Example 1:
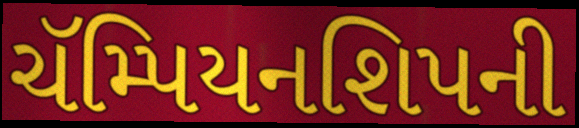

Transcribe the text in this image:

ચૅમ્પિયનશિપની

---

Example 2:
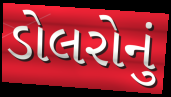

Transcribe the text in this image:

ડોલરોનું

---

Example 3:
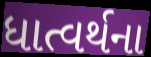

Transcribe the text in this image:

ધાત્વર્થના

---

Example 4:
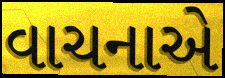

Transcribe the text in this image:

વાચનાએ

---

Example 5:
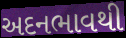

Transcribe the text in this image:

અદનભાવથી